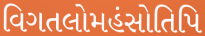
વિગતલોમહંસોતિપિ